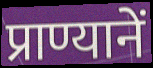
प्राण्यानें